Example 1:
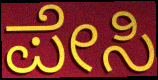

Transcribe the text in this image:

ಪೇಸಿ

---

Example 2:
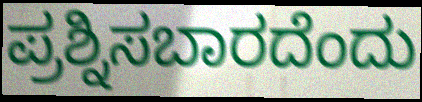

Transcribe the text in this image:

ಪ್ರಶ್ನಿಸಬಾರದೆಂದು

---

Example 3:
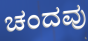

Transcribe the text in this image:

ಚಂದವು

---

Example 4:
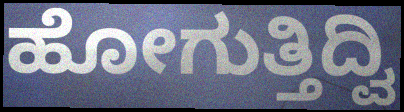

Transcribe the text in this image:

ಹೋಗುತ್ತಿದ್ವಿ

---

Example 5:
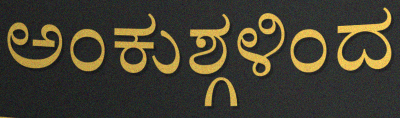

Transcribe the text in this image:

ಅಂಕುಶ್ಗಳಿಂದ